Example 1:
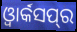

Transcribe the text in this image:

ଓ୍ୱାର୍କସପ୍‌ର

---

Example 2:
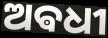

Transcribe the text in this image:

ଅଵଧୀ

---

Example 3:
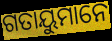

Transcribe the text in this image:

ଗତାୟୁମାନେ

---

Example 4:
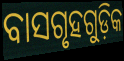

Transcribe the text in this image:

ବାସଗୃହଗୁଡ଼ିକ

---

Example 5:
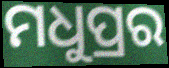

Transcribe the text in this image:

ମଧୁପ୍ରର